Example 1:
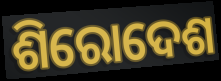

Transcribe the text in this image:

ଶିରୋଦେଶ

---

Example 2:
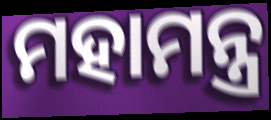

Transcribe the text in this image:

ମହାମନ୍ତ୍ର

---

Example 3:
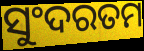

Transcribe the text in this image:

ସୁଂଦରତମ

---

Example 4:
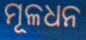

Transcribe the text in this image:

ମୂଳଧନ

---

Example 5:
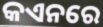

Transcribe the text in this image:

କଏନରେ